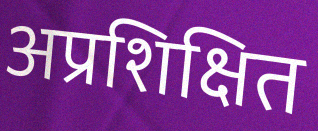
अप्रशिक्षित